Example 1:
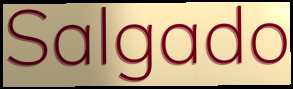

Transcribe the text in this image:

Salgado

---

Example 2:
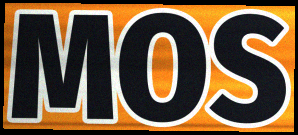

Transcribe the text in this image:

MOS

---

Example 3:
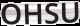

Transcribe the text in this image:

OHSU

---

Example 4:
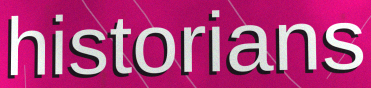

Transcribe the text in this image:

historians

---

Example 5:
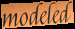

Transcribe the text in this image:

modeled